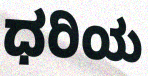
ಧರಿಯ